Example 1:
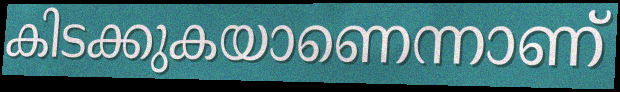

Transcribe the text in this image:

കിടക്കുകയാണെന്നാണ്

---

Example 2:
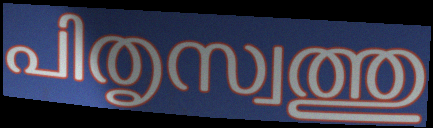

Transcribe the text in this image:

പിതൃസ്വത്തു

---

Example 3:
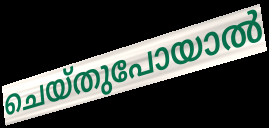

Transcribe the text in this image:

ചെയ്തുപോയാൽ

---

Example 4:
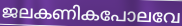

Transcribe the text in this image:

ജലകണികപോലവേ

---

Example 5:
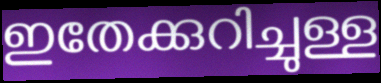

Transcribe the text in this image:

ഇതേക്കുറിച്ചുള്ള